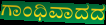
ಗಾಂಧಿವಾದದ